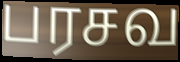
பரசவ